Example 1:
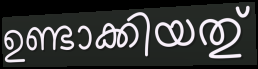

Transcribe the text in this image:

ഉണ്ടാക്കിയതു്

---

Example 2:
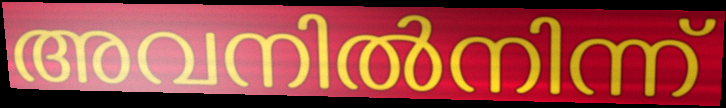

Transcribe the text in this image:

അവനിൽനിന്ന്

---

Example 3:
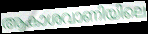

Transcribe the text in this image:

ആകാശവാണിയിലെ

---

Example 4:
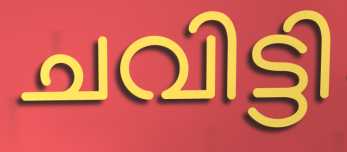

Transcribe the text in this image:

ചവിട്ടി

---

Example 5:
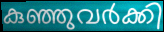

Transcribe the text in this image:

കുഞ്ഞുവർക്കി